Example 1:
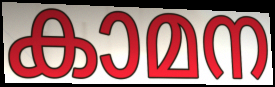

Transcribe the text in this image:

കാമന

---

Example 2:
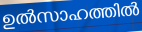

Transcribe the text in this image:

ഉൽസാഹത്തിൽ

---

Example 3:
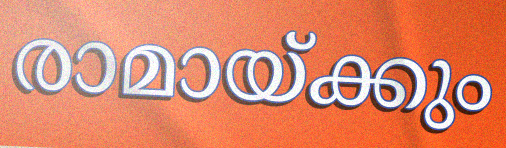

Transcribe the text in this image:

രാമായ്ക്കും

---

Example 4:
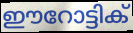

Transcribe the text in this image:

ഈറോട്ടിക്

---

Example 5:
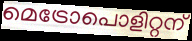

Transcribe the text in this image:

മെട്രോപൊളിറ്റന്